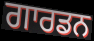
ਗਾਰਡਨ